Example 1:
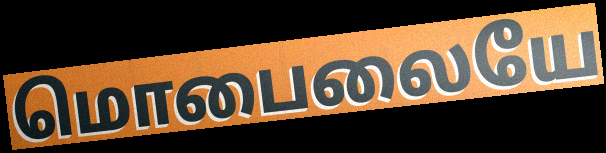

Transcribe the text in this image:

மொபைலையே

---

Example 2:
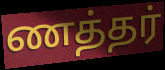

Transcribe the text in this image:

ணத்தர்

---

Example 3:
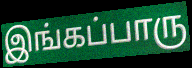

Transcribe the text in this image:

இங்கப்பாரு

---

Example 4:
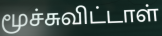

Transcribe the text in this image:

மூச்சுவிட்டாள்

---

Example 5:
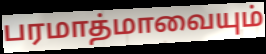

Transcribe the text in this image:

பரமாத்மாவையும்